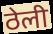
ठेली